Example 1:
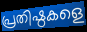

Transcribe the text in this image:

പ്രതിഷ്ഠകളെ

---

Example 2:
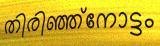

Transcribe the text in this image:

തിരിഞ്ഞ്നോട്ടം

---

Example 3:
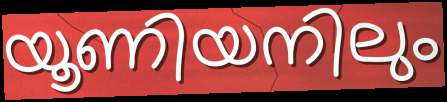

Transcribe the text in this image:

യൂണിയനിലും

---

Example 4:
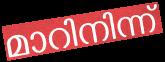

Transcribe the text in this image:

മാറിനിന്ന്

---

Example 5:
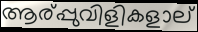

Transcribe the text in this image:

ആര്പ്പുവിളികളാല്